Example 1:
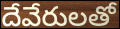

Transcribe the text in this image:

దేవేరులతో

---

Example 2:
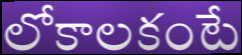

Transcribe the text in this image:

లోకాలకంటే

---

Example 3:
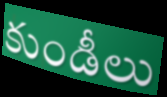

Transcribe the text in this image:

కుండీలు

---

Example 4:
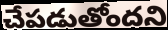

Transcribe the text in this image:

చేపడుతోందని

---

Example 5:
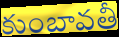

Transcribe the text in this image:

కుంబావతీ